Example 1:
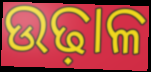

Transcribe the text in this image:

ଉଢ଼ାଳ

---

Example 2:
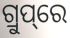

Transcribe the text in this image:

ଗ୍ରୁପ୍‌ରେ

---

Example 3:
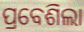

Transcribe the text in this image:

ପ୍ରବେଶିଲା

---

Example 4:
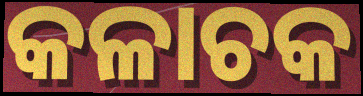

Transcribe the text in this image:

କଳାଚକ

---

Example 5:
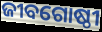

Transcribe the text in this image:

ଜୀବଗୋଷ୍ଠୀ